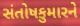
સંતોષકુમારને